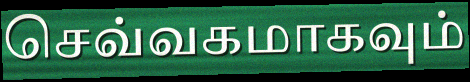
செவ்வகமாகவும்